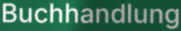
Buchhandlung